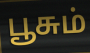
பூசும்